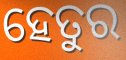
ହେତୁର